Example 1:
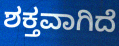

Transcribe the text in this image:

ಶಕ್ತವಾಗಿದೆ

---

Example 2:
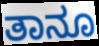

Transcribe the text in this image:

ತಾನೂ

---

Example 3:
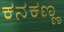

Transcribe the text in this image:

ಕನಕಣ್ಣ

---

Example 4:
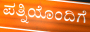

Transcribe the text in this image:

ಪತ್ನಿಯೊಂದಿಗೆ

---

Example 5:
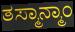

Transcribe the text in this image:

ತಸ್ಮಾನ್ಮಾಂ